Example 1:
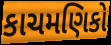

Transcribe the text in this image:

કાચમણિકો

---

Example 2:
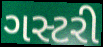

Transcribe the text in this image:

ગસ્ટરી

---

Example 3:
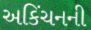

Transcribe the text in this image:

અકિંચનની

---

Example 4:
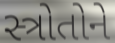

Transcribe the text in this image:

સ્ત્રોતોને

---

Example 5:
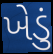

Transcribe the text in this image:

ખેડું